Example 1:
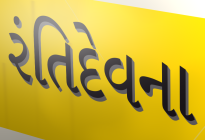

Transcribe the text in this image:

રંતિદેવના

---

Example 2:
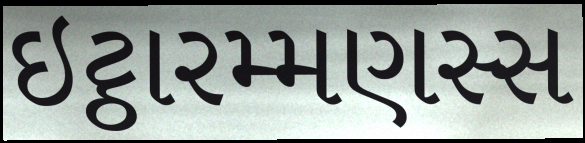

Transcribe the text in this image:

ઇટ્ઠારમ્મણસ્સ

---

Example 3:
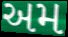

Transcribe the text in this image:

અમ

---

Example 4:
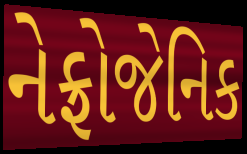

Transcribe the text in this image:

નેફ્રોજેનિક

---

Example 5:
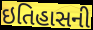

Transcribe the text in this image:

ઇતિહાસની